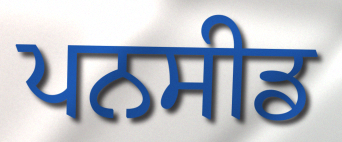
ਪਨਸੀਡ